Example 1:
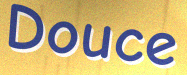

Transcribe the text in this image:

Douce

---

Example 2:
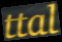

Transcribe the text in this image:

ttal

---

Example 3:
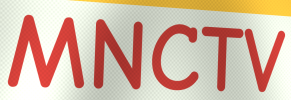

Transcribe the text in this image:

MNCTV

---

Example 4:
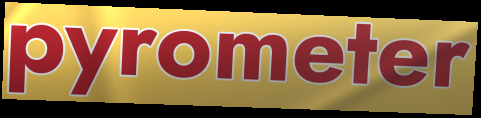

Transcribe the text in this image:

pyrometer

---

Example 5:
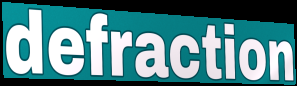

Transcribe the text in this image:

defraction